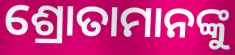
ଶ୍ରୋତାମାନଙ୍କୁ